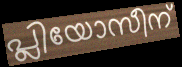
പ്ലിയോസീന്